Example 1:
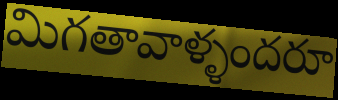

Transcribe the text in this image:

మిగతావాళ్ళందరూ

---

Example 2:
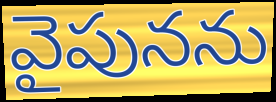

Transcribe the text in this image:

వైపునను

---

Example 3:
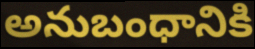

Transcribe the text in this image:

అనుబంధానికి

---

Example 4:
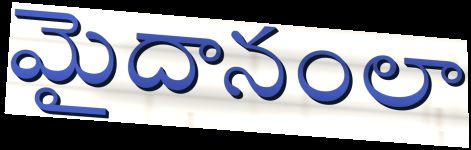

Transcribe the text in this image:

మైదానంలా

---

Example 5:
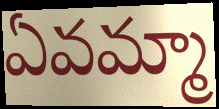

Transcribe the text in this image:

ఏవమ్మా